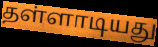
தள்ளாடியது